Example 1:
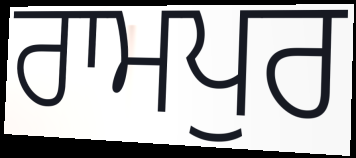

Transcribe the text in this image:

ਰਾਮਪੁਰ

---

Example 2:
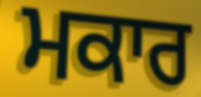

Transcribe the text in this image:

ਮਕਾਰ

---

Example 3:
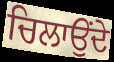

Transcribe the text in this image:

ਚਿਲਾਉਂਦੇ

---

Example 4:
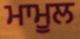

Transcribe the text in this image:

ਮਾਮੂਲ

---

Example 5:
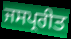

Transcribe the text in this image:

ਜਸਪ੍ਰਰੀਤ